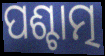
ପଶ୍ଚାତ୍ମ